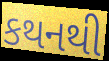
કથનથી